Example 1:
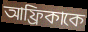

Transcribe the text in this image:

আফ্রিকাকে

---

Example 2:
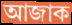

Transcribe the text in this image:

আজাক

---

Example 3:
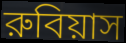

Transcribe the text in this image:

রুবিয়াস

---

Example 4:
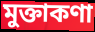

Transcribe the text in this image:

মুক্তাকণা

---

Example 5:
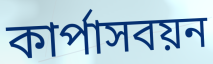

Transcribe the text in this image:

কার্পাসবয়ন